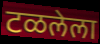
टळलेला